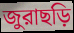
জুরাছড়ি